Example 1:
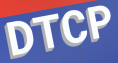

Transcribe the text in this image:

DTCP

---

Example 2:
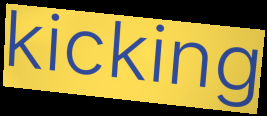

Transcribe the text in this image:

kicking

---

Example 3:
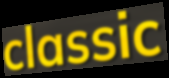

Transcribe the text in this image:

classic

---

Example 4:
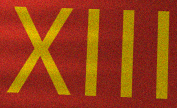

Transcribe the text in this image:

XIII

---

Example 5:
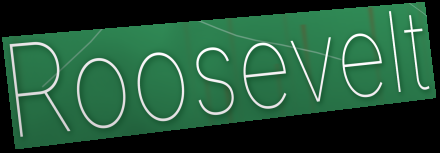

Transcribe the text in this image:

Roosevelt